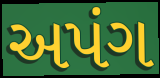
અપંગ